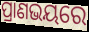
ପ୍ରାଣଭୟରେ